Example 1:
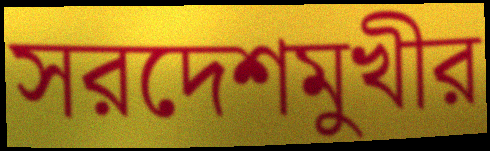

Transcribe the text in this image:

সরদেশমুখীর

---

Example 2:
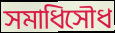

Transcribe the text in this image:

সমাধিসৌধ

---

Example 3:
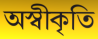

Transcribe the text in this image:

অস্বীকৃতি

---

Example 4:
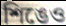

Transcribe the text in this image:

শিঙেও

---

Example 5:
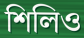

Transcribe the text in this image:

শিলিও